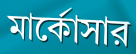
মার্কোসার